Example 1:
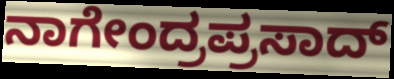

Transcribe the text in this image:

ನಾಗೇಂದ್ರಪ್ರಸಾದ್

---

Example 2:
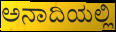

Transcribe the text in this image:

ಅನಾದಿಯಲ್ಲಿ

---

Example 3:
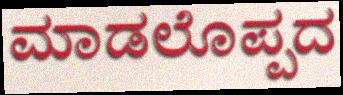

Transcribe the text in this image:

ಮಾಡಲೊಪ್ಪದ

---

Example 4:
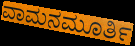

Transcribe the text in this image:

ವಾಮನಮೂರ್ತಿ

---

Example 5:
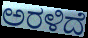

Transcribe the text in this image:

ಅರಳಿದೆ